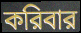
করিবার